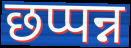
छप्पन्न